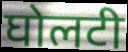
घोलटी